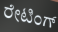
ರೇಟಿಂಗ್